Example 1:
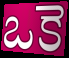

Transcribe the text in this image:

ఒకె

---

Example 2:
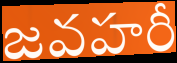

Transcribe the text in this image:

జవహరీ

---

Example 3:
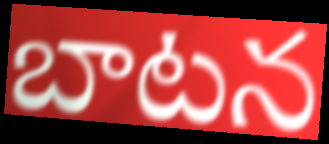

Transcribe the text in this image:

బాటన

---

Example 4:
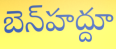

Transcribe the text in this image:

బెన్‍హద్దూ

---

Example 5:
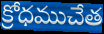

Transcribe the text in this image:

క్రోధముచేత